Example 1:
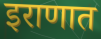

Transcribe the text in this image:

इराणात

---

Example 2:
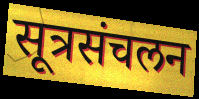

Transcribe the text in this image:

सूत्रसंचलन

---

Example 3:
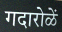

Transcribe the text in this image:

गदारोळें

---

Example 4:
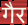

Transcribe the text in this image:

गैर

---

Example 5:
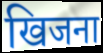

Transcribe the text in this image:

खिजना